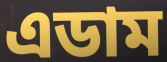
এডাম